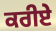
ਕਰੀਏੇ